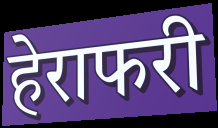
हेराफरी